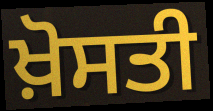
ਖ਼ੋਸਤੀ